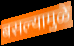
बसल्यामुळे